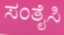
ಸಂತೈಸಿ